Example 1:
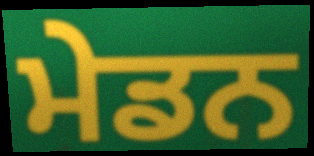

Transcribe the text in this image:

ਮੇਡਨ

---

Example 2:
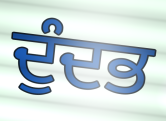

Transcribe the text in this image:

ਦੁੰਦਭ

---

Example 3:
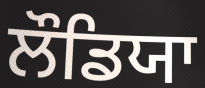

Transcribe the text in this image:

ਲੌਡਿਯਾ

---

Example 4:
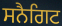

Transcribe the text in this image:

ਸਨੈਗਿਟ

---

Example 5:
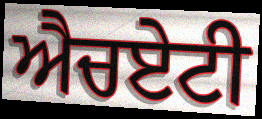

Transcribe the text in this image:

ਐਚਏਟੀ